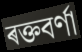
ৰক্তবৰ্ণা